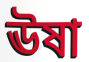
ঊষা